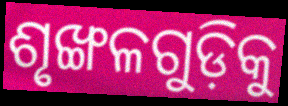
ଶୃଙ୍ଖଳଗୁଡ଼ିକୁ